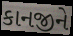
કાનજીને